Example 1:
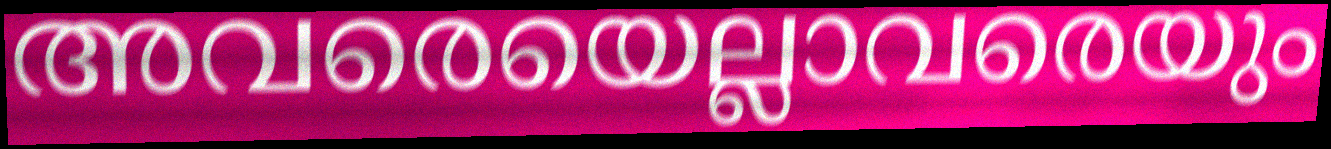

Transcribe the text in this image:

അവരെയെല്ലാവരെയും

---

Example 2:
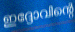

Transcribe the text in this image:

ഇദ്ദോവിന്റെ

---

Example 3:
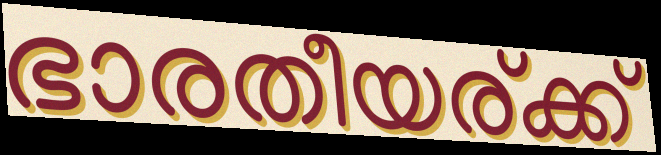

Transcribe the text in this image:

ഭാരതീയര്ക്ക്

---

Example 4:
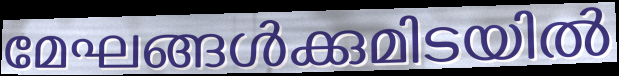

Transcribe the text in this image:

മേഘങ്ങൾക്കുമിടയിൽ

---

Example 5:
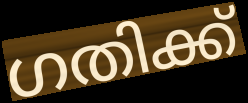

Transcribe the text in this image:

ഗതിക്ക്